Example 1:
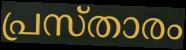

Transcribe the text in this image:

പ്രസ്താരം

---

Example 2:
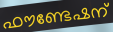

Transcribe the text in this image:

ഫൗണ്ടേഷന്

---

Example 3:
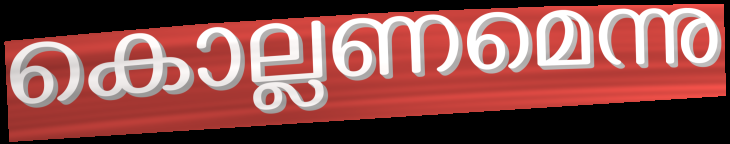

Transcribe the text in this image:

കൊല്ലണമെന്നു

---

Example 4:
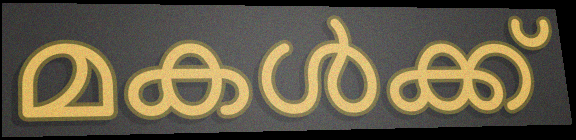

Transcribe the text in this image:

മകൾക്ക്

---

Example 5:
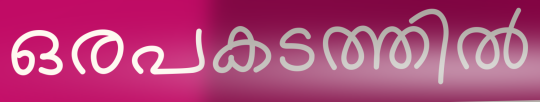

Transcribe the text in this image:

ഒരപകടത്തിൽ